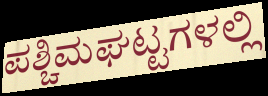
ಪಶ್ಚಿಮಘಟ್ಟಗಳಲ್ಲಿ